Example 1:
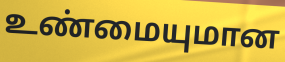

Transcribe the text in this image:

உண்மையுமான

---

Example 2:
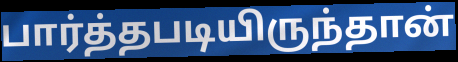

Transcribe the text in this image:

பார்த்தபடியிருந்தான்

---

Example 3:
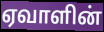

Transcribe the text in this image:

ஏவாளின்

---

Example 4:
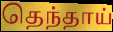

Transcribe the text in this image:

தெந்தாய்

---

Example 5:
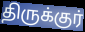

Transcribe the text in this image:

திருக்குர்